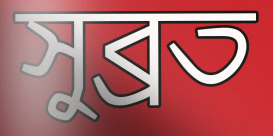
সুব্ৰত